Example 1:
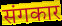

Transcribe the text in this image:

संगकार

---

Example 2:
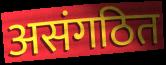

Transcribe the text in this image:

असंगठित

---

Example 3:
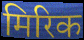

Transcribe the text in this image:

मिरिक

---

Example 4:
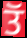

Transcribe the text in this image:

उॅ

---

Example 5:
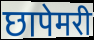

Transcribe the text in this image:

छापेमरी